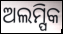
ଅଲମ୍ପିକ